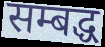
सम्बद्ध